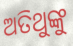
ଅତିଥୁଙ୍କୁ